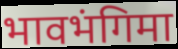
भावभंगिमा